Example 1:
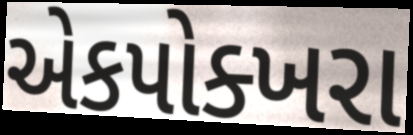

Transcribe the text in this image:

એકપોક્ખરા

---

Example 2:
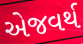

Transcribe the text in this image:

એજવર્થ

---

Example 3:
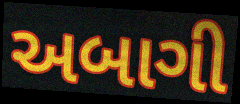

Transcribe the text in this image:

અબાગી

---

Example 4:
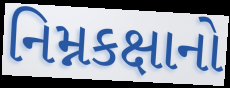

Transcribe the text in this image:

નિમ્નકક્ષાનો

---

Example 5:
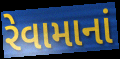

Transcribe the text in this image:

રેવામાનાં